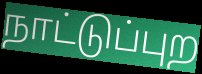
நாட்டுப்புற